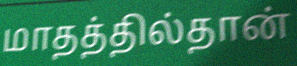
மாதத்தில்தான்